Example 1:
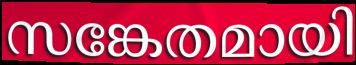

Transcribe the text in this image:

സങ്കേതമായി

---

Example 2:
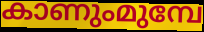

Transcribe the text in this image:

കാണുംമുമ്പേ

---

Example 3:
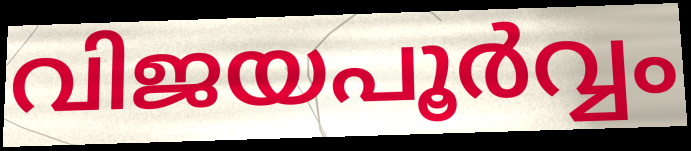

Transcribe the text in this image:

വിജയപൂർവ്വം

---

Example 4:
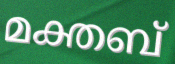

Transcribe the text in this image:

മക്തബ്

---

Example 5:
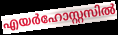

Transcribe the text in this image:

എയർഹോസ്റ്റസിൽ